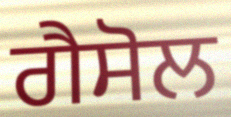
ਗੈਸੋਲ